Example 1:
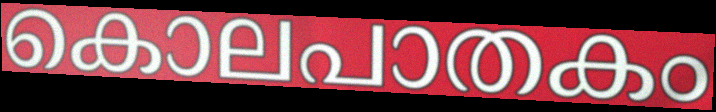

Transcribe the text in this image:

കൊലപാതകം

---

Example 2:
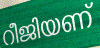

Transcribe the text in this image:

റീജിയണ്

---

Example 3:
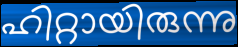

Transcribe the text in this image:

ഹിറ്റായിരുന്നു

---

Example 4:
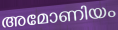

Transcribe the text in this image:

അമോണിയം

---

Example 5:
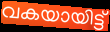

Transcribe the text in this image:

വകയായിട്ട്